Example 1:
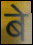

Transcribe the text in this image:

बे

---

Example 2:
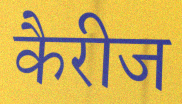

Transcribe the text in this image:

कैरीज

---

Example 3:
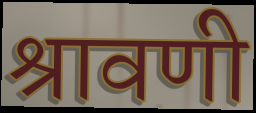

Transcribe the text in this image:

श्रावणी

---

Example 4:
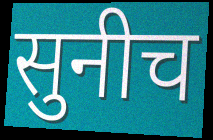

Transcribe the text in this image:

सुनीच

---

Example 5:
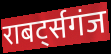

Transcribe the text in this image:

राबर्ट्सगंज